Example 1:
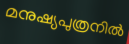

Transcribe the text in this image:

മനുഷ്യപുത്രനിൽ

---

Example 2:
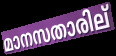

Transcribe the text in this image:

മാനസതാരില്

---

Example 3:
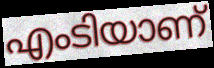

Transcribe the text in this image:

എംടിയാണ്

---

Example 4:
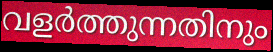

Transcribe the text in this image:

വളർത്തുന്നതിനും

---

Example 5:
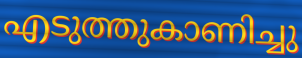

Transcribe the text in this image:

എടുത്തുകാണിച്ചു